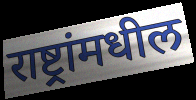
राष्ट्रांमधील